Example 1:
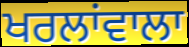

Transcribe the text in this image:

ਖਰਲਾਂਵਾਲਾ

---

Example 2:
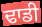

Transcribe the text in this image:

ਢਾਡੀ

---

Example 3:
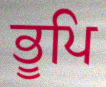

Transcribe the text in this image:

ਭੂਪਿ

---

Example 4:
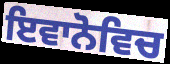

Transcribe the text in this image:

ਇਵਾਨੋਵਿਚ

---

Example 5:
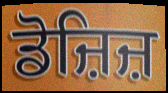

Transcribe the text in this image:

ਡੋਜ਼ਿਜ਼